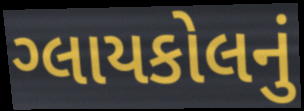
ગ્લાયકોલનું